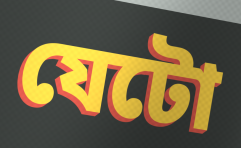
যেটো